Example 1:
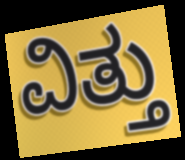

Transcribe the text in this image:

ವಿತ್ತು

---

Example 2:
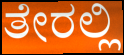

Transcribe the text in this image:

ತೇರಲ್ಲಿ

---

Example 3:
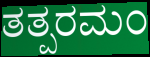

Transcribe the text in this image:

ತತ್ಪರಮಂ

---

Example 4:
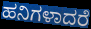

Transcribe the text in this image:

ಹನಿಗಳಾದರೆ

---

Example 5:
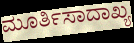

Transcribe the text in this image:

ಮೂರ್ತಿಸಾದಾಖ್ಯ